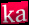
ka